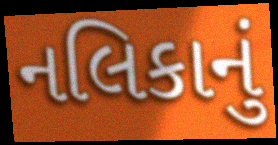
નલિકાનું